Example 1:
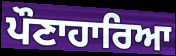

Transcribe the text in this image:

ਪੌਣਾਹਾਰਿਆ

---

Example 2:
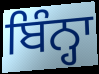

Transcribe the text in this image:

ਬਿੰਨ੍ਹਾ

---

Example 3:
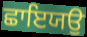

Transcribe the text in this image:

ਛਾਇਯਉ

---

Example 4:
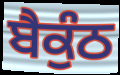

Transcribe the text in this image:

ਬੈਕੁੰਠ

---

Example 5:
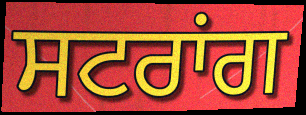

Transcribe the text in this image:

ਸਟਰਾਂਗ